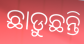
ଛାଡ଼ୁଛନ୍ତି